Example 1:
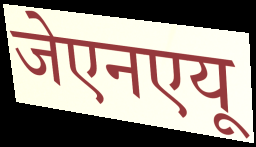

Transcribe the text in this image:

जेएनएयू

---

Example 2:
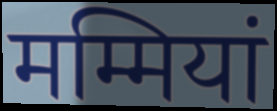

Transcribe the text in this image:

मम्मियां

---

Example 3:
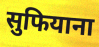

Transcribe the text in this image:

सुफियाना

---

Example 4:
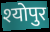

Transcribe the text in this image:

श्‍योपुर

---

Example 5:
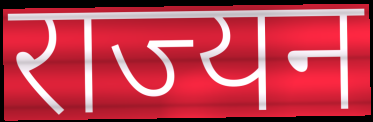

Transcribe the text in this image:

राज्यन